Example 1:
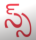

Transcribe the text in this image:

స్స్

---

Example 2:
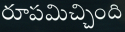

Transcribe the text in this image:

రూపమిచ్చింది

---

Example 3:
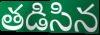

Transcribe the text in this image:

తడిసిన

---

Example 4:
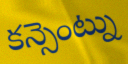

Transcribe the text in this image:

కన్సెంట్ను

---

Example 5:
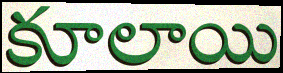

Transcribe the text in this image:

కూలాయి